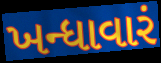
ખન્ધાવારં